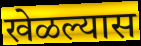
खेळल्यास